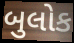
બુલોક